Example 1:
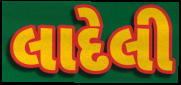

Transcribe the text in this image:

લાદેલી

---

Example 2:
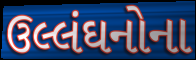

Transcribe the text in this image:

ઉલ્લંઘનોના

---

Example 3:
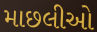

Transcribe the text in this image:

માછલીઓ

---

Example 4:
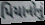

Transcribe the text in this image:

પિયાનોનું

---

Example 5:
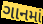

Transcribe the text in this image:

ગાનમાં